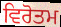
ਵਿਰੋਤਮ